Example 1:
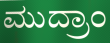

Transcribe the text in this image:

ಮುದ್ರಾಂ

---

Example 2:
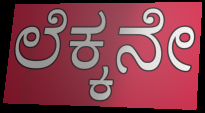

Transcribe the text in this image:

ಲೆಕ್ಕನೇ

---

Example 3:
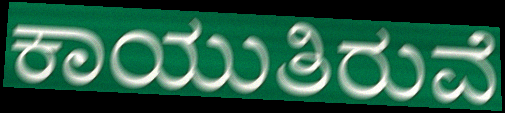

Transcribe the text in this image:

ಕಾಯುತಿರುವೆ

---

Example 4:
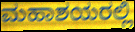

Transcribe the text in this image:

ಮಹಾಶಯರಲ್ಲಿ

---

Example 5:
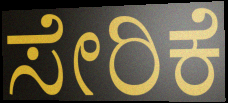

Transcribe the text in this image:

ಸೇರಿಕೆ